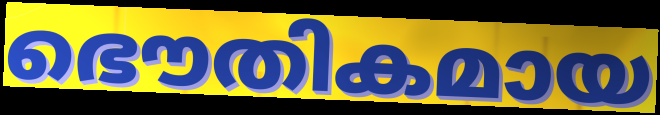
ഭൌതികമായ